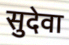
सुदेवा